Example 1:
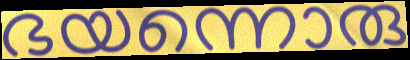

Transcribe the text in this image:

ഭയന്നൊരു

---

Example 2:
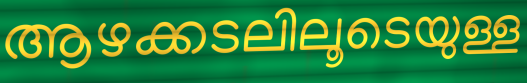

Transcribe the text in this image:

ആഴക്കടലിലൂടെയുള്ള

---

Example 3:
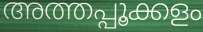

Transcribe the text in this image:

അത്തപ്പൂക്കളം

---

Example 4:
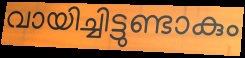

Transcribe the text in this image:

വായിച്ചിട്ടുണ്ടാകും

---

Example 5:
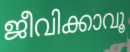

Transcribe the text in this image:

ജീവിക്കാവൂ